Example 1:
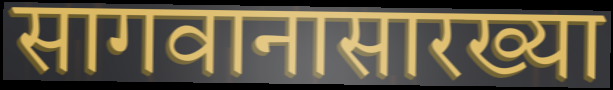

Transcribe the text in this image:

सागवानासारख्या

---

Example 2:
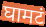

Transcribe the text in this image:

घामटं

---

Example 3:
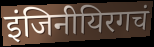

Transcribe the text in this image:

इंजिनीयिरगचं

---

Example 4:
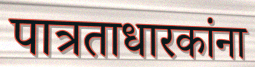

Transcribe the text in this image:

पात्रताधारकांना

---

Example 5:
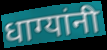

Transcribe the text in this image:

धाग्यांनी